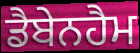
ਡੈਬੇਨਹੈਮ